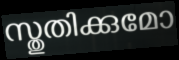
സ്തുതിക്കുമോ